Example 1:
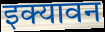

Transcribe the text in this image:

इक्‍यावन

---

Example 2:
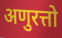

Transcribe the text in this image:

अणुरत्तो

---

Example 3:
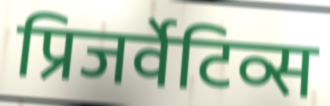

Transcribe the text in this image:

प्रिजर्वेटिव्स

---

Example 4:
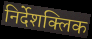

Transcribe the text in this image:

निर्देशक्लिक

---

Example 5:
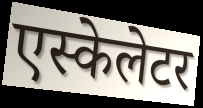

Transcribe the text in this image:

एस्केलेटर